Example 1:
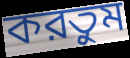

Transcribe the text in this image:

করতুম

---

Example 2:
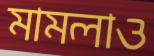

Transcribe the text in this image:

মামলাও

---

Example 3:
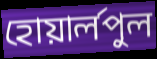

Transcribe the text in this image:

হোয়ার্লপুল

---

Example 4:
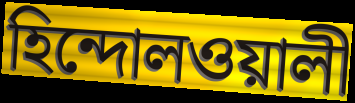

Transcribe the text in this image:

হিন্দোলওয়ালী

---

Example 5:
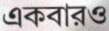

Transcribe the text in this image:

একবারও